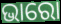
ଭାରୋ